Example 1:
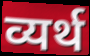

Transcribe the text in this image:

व्यर्थ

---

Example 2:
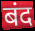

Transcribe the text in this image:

बंद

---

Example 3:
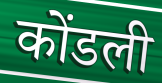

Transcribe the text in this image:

कोंडली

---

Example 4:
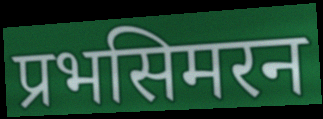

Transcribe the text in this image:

प्रभसिमरन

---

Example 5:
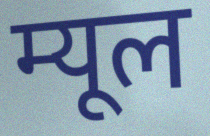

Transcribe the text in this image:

म्यूल